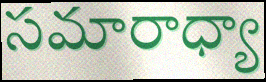
సమారాధ్యా